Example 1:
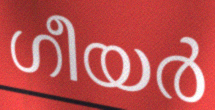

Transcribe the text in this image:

ഗീയർ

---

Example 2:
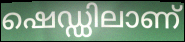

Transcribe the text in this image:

ഷെഡ്ഡിലാണ്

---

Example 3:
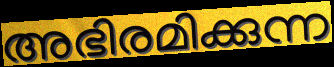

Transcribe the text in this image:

അഭിരമിക്കുന്ന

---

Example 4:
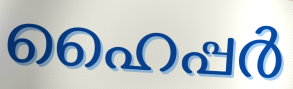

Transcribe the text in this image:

ഹൈപ്പർ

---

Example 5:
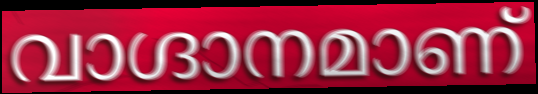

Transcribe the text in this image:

വാഗ്ദാനമാണ്